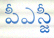
పీఎస్జీ